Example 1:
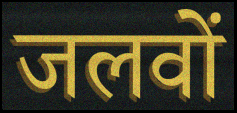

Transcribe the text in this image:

जलवों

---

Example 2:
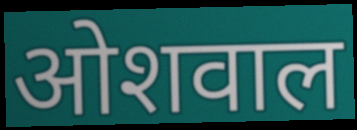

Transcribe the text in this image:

ओशवाल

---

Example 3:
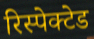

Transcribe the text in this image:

रिस्पेक्टेड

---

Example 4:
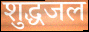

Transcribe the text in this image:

शुद्धजल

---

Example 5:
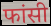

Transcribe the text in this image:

फांसी